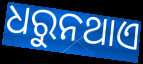
ଧରୁନଥାଏ